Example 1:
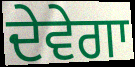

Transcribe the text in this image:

ਦੇਵੇਗਾ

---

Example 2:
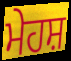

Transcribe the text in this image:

ਮੇਹਸ਼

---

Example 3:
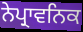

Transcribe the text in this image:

ਨੇਪ੍ਰਾਵਨਿਕ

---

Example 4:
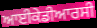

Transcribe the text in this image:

ਆਈਕੇਡੀਆਰਸੀ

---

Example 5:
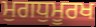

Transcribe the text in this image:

ਮੁਗਧੁਮੂਰਖ